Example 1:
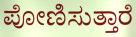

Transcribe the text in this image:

ಪೋಣಿಸುತ್ತಾರೆ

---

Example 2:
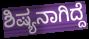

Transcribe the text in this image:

ಶಿಷ್ಯನಾಗಿದ್ದೆ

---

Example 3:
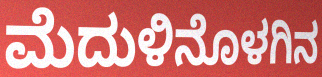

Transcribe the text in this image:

ಮೆದುಳಿನೊಳಗಿನ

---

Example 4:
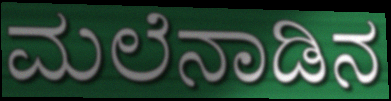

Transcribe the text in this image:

ಮಲೆನಾಡಿನ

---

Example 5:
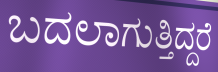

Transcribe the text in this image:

ಬದಲಾಗುತ್ತಿದ್ದರೆ